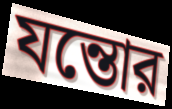
যন্তোর